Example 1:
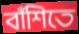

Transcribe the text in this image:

বাঁশিতে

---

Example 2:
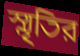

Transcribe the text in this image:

স্মৃতির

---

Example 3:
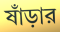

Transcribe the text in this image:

ষাঁড়ার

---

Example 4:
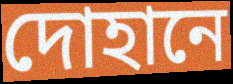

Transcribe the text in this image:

দোহানে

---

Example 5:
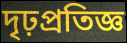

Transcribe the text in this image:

দৃঢ়প্রতিজ্ঞ